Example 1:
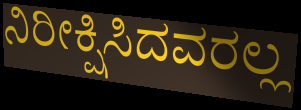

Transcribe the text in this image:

ನಿರೀಕ್ಷಿಸಿದವರಲ್ಲ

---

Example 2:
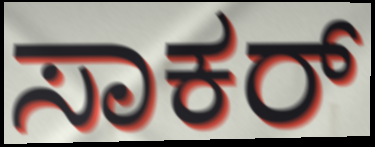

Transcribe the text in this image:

ಸಾಕರ್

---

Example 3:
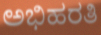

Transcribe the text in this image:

ಅಭಿಹರತಿ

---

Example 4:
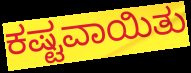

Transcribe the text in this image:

ಕಷ್ಟವಾಯಿತು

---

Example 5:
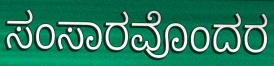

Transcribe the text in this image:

ಸಂಸಾರವೊಂದರ